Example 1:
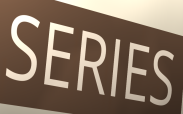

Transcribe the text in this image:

SERIES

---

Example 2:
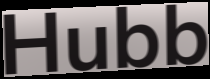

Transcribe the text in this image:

Hubb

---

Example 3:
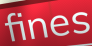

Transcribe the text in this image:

fines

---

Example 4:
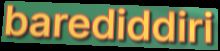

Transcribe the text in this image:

barediddiri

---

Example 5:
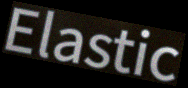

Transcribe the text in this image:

Elastic